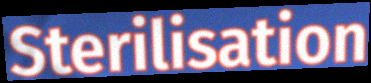
Sterilisation